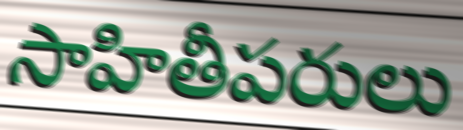
సాహితీపరులు